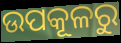
ଉପକୂଳରୁ